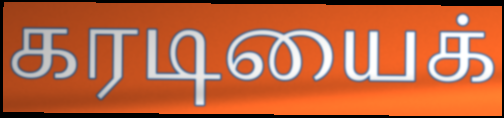
கரடியைக்